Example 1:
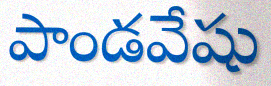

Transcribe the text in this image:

పాండవేషు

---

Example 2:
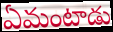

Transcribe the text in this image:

ఏమంటాడు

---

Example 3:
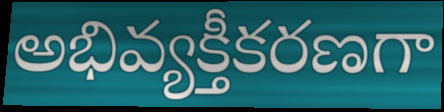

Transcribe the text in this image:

అభివ్యక్తీకరణగా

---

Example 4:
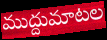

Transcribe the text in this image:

ముద్దుమాటల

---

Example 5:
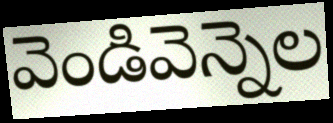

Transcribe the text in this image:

వెండివెన్నెల